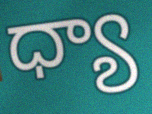
ధ్యా